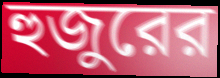
হুজুরের